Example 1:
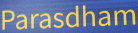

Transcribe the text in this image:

Parasdham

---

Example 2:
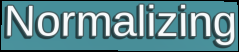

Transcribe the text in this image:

Normalizing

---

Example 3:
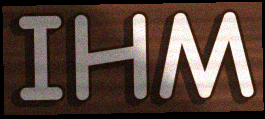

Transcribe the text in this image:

IHM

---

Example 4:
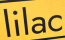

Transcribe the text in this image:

lilac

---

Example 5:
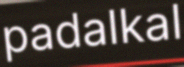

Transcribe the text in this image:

padalkal